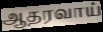
ஆதரவாய்